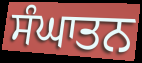
ਸੰਘਾਤਨ